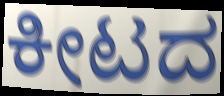
ಕೀಟದ